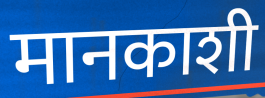
मानकाशी